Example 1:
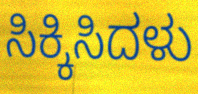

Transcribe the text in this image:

ಸಿಕ್ಕಿಸಿದಳು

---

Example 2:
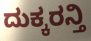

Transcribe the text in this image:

ದುಕ್ಕರನ್ತಿ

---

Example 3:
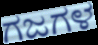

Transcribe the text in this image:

ಗಜಗಳ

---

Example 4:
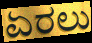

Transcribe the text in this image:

ಏರಲು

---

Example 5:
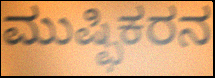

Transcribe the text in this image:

ಮುಷ್ಫಿಕರನ